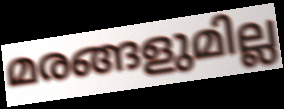
മരങ്ങളുമില്ല